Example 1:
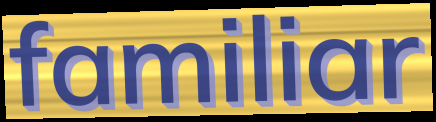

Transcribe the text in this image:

familiar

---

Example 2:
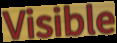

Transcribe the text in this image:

Visible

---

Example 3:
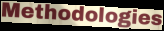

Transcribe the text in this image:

Methodologies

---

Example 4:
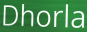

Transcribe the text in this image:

Dhorla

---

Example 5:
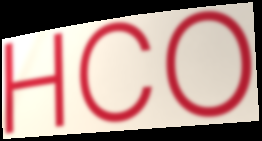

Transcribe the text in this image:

HCO